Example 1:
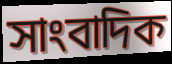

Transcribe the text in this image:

সাংবাদিক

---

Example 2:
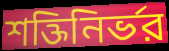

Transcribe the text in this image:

শক্তিনির্ভর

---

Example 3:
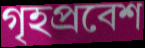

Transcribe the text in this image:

গৃহপ্রবেশ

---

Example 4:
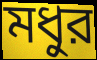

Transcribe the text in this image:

মধুর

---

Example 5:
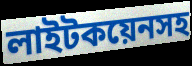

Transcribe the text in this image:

লাইটকয়েনসহ